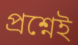
প্রশ্নেই